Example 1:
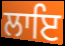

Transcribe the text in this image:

ਲਾਇ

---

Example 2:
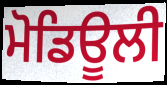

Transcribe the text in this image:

ਮੋਡਿਊਲੀ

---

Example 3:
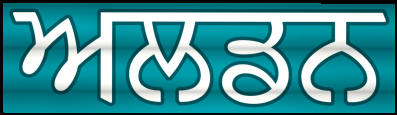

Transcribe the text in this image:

ਅਲਡਨ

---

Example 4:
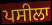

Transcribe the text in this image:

ਪਸੀਲਾ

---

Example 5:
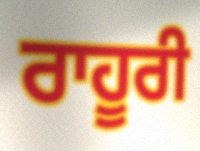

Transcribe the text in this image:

ਰਾਹੂਰੀ